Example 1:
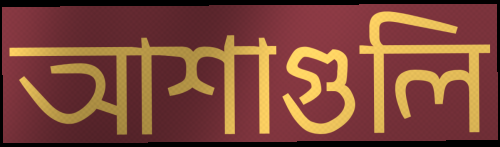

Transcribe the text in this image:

আশাগুলি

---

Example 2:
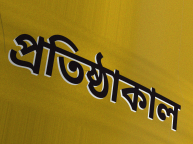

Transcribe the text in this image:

প্রতিষ্ঠাকাল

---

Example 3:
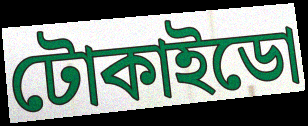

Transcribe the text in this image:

টোকাইডো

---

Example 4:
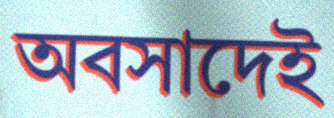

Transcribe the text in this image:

অবসাদেই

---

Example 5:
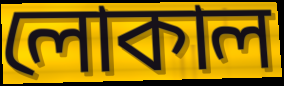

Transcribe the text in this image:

লোকাল